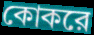
কোকরে